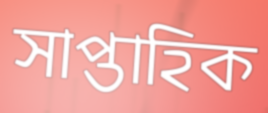
সাপ্তাহিক